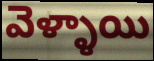
వెళ్ళాయి